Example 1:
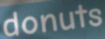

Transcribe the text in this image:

donuts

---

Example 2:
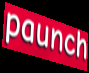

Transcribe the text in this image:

paunch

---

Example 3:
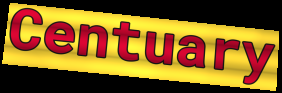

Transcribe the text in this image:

Centuary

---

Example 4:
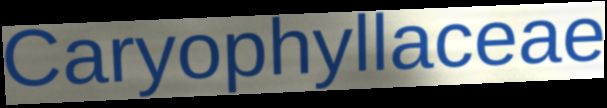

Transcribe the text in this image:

Caryophyllaceae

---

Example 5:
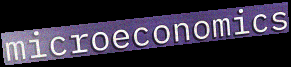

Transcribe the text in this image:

microeconomics